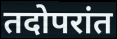
तदोपरांत